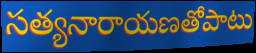
సత్యనారాయణతోపాటు